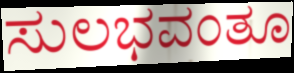
ಸುಲಭವಂತೂ